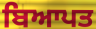
ਬਿਆਪਤ